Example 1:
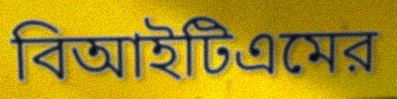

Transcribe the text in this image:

বিআইটিএমের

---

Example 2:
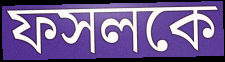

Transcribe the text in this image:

ফসলকে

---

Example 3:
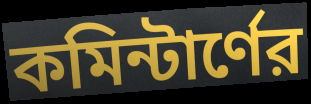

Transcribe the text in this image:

কমিন্টার্ণের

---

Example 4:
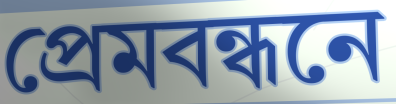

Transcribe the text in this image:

প্রেমবন্ধনে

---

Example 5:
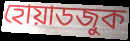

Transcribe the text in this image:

হোয়াডজুক